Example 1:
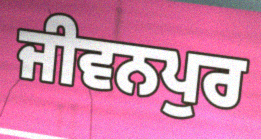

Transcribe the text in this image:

ਜੀਵਨਪੁਰ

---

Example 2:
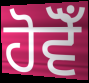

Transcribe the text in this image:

ਹੋਵੋਁ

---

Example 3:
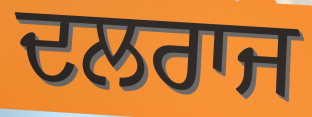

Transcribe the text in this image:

ਦਲਰਾਜ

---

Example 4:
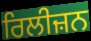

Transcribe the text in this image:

ਰਿਲੀਜ਼ਨ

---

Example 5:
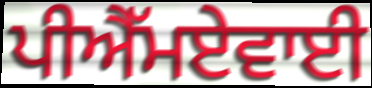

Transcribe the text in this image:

ਪੀਐੱਮਏਵਾਈ